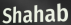
Shahab